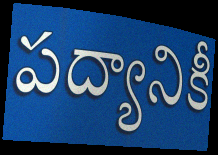
పద్యానికీ